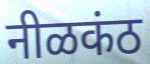
नीळकंठ